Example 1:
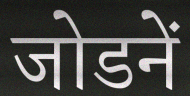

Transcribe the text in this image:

जोडनें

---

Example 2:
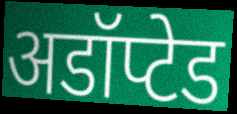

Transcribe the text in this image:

अडॉप्टेड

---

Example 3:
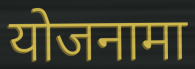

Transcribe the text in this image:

योजनामा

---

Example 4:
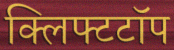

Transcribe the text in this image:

क्लिफ्टटॉप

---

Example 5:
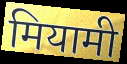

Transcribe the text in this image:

मियामी